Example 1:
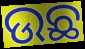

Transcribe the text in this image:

ଉଛ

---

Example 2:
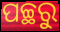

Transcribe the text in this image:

ପଚ୍ଛରୁ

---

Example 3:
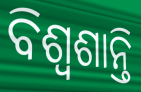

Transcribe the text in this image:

ବିଶ୍ୱଶାନ୍ତି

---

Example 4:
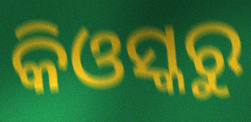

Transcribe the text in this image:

କିଓସ୍କରୁ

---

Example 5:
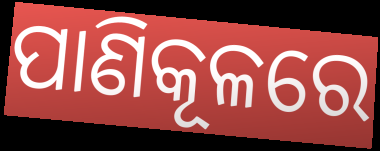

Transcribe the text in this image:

ପାଣିକୂଳରେ